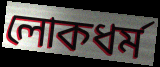
লোকধর্ম